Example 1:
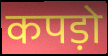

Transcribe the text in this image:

कपड़ो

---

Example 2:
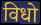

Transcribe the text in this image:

विधो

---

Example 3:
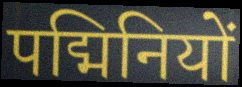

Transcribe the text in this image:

पद्मिनियों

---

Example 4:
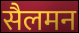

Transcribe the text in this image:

सैलमन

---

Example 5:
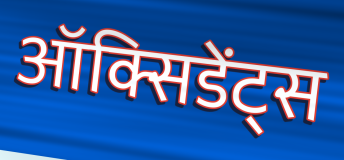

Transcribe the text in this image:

ऑक्सिडेंट्स